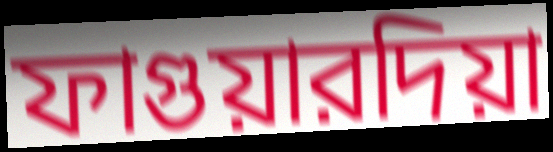
ফাগুয়ারদিয়া